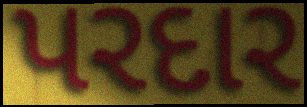
પરદાર